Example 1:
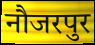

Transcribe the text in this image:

नौजरपुर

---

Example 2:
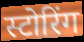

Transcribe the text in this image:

स्टोरिंग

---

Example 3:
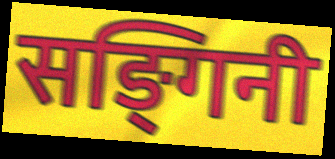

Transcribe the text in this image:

सङ्गिनी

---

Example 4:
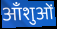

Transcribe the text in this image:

आँशुओं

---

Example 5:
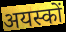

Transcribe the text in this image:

अयस्कों